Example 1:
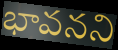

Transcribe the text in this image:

భావనని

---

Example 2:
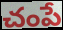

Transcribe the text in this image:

చంపే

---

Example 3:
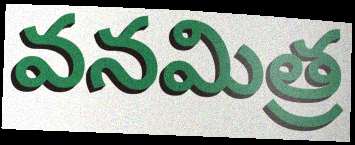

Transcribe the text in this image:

వనమిత్ర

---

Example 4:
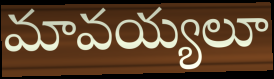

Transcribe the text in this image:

మావయ్యలూ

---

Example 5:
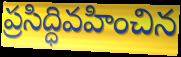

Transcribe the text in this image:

ప్రసిద్ధివహించిన